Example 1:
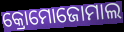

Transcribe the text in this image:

କ୍ରୋମୋଜୋମାଲ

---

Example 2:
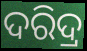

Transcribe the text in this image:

ଦରିଦ୍ର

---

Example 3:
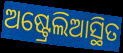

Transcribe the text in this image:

ଅଷ୍ଟ୍ରେଲିଆସ୍ଥିତ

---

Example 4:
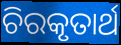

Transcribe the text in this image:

ଚିରକୃତାର୍ଥ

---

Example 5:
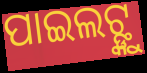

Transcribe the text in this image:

ପାଇଲଟ୍ଙ୍କୁ